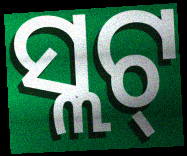
ସ୍ଲଟ୍